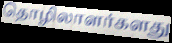
தொழிலாளர்களது